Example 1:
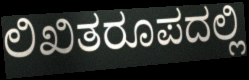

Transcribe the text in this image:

ಲಿಖಿತರೂಪದಲ್ಲಿ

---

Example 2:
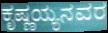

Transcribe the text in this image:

ಕೃಷ್ಣಯ್ಯನವರ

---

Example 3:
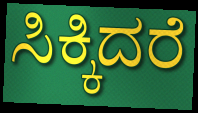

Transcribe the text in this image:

ಸಿಕ್ಕಿದರೆ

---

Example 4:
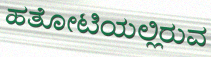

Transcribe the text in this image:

ಹತೋಟಿಯಲ್ಲಿರುವ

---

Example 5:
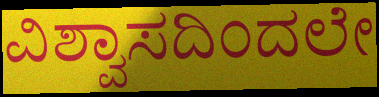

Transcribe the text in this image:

ವಿಶ್ವಾಸದಿಂದಲೇ